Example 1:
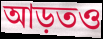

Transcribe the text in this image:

আড়তও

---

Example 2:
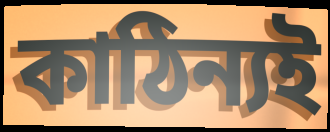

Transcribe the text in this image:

কাঠিন্যই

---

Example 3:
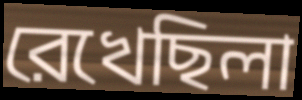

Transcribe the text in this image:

রেখেছিলা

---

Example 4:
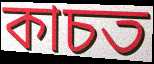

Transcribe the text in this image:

কাচত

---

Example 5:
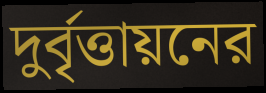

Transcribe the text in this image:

দুর্বৃত্তায়নের